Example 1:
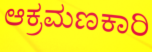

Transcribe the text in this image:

ಆಕ್ರಮಣಕಾರಿ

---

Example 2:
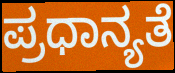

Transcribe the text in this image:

ಪ್ರಧಾನ್ಯತೆ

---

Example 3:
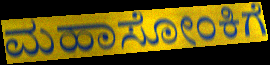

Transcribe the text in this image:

ಮಹಾಸೋಂಕಿಗೆ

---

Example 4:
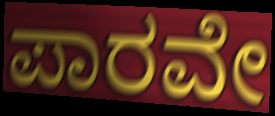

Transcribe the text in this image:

ಪಾರವೇ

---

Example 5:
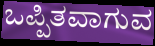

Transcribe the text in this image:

ಒಪ್ಪಿತವಾಗುವ